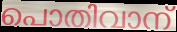
പൊതിവാന്